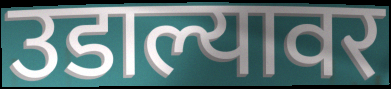
उडाल्यावर